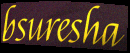
bsuresha